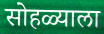
सोहळ्याला